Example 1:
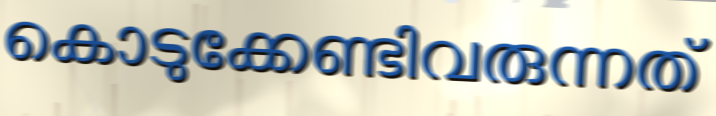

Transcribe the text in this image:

കൊടുക്കേണ്ടിവരുന്നത്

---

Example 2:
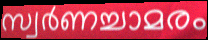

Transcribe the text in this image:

സ്വർണച്ചാമരം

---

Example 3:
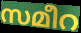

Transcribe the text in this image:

സമീറ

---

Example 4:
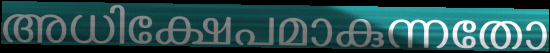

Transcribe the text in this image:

അധിക്ഷേപമാകുന്നതോ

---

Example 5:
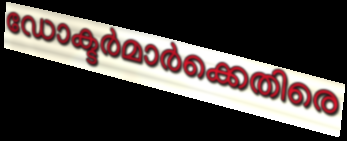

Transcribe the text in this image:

ഡോക്ടർമാർക്കെതിരെ